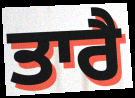
ਤਾਰੈ